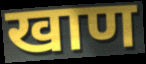
खाण